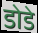
डोडे